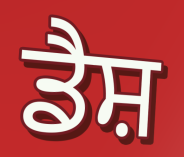
ਡੈਸ਼